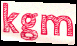
kgm